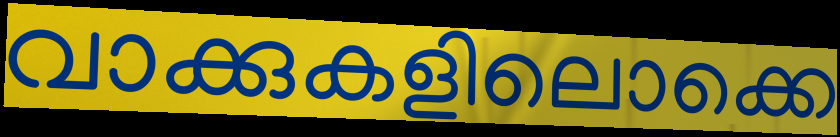
വാക്കുകളിലൊക്കെ